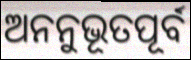
ଅନନୁଭୂତପୂର୍ବ